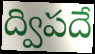
ద్విపదే